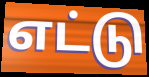
எட்டு